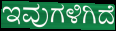
ಇವುಗಳಿಗಿದೆ